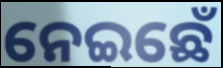
ନେଇଛେଁ